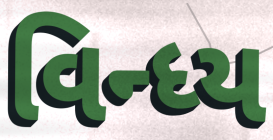
વિન્ધ્ય